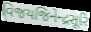
વિજયજિનેન્દ્રસૂરિ